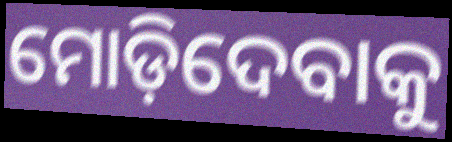
ମୋଡ଼ିଦେବାକୁ